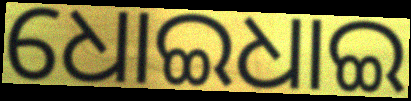
ଧୋଇଧାଇ